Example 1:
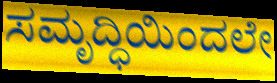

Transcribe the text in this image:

ಸಮೃದ್ಧಿಯಿಂದಲೇ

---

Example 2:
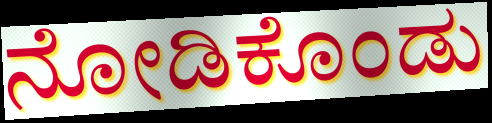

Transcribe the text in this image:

ನೋಡಿಕೊಂಡು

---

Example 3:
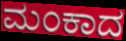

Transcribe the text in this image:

ಮಂಕಾದ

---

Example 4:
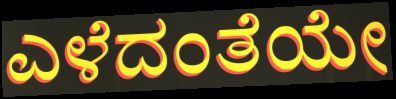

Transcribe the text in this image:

ಎಳೆದಂತೆಯೇ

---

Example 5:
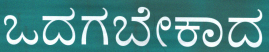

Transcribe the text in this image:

ಒದಗಬೇಕಾದ